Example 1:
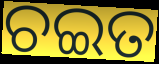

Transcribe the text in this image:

ଚଇତ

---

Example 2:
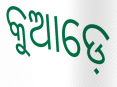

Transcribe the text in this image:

କୁଆଡ଼େ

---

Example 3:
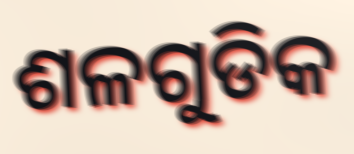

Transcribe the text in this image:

ଶଳଗୁଡିକ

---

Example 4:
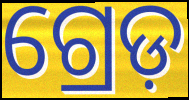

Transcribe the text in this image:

ଗ୍ରେଡ଼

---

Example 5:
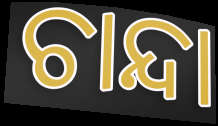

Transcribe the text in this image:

ଚାନ୍ଦା